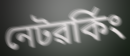
নেটৱৰ্কিং